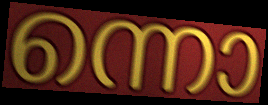
ന്നൊ